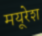
मयूरेश